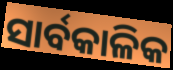
ସାର୍ବକାଳିକ